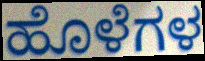
ಹೊಳೆಗಳ